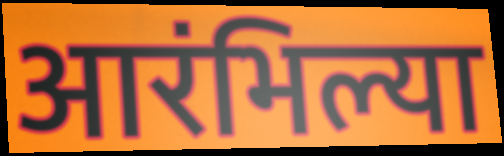
आरंभिल्या